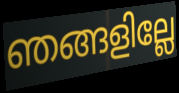
ഞങ്ങളില്ലേ